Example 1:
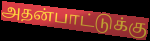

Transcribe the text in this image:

அதன்பாட்டுக்கு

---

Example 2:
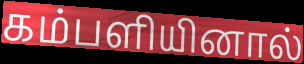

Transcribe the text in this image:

கம்பளியினால்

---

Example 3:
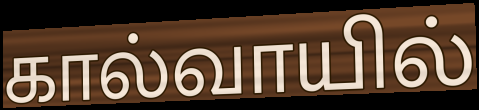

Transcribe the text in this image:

கால்வாயில்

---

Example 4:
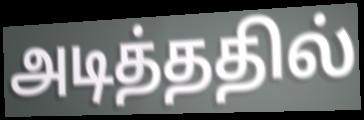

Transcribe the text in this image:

அடித்ததில்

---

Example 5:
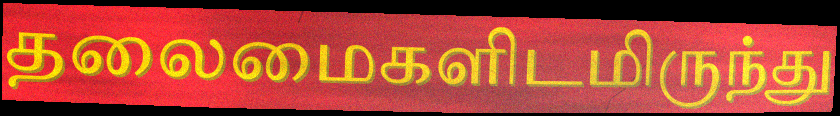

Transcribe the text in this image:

தலைமைகளிடமிருந்து